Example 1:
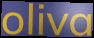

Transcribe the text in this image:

oliva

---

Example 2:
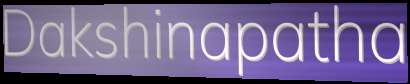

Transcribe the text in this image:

Dakshinapatha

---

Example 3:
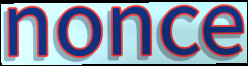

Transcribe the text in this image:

nonce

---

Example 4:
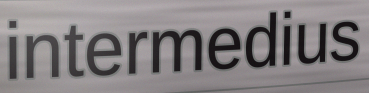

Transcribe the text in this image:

intermedius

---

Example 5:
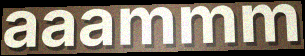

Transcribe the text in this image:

aaammm